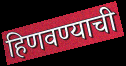
हिणवण्याची